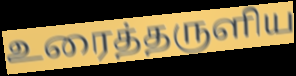
உரைத்தருளிய